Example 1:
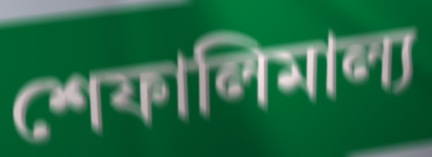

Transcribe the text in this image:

শেফালিমাল্য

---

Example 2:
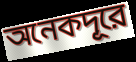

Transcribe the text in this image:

অনেকদূরে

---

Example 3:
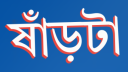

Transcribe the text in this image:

ষাঁড়টা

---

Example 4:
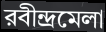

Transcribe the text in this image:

রবীন্দ্রমেলা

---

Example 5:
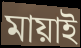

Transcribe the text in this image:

মায়াই